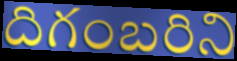
దిగంబరిని